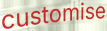
customise